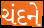
ચંદને